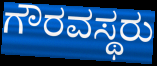
ಗೌರವಸ್ಥರು